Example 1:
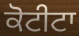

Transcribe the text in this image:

ਕੋਟੀਟਾ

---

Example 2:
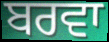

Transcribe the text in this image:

ਬਰਵਾ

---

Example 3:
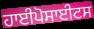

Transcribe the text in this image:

ਹਾਈਪੋਸਾਈਟਸ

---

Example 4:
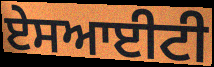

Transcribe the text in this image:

ਏਸਆਈਟੀ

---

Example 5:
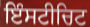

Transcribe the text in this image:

ਇੰਸਟੀਚਿਟ